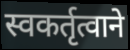
स्वकर्तृत्वाने